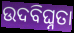
ଉଦବିଘ୍ନତା